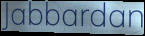
Jabbardan